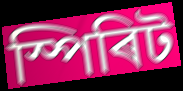
স্পিৰিট